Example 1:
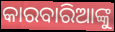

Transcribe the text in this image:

କାରବାରିଆଙ୍କୁ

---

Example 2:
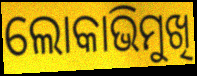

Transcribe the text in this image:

ଲୋକାଭିମୁଖି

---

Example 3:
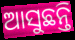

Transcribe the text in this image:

ଆସୁଛନ୍ତି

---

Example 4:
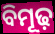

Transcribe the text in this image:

ବିମୂଢ଼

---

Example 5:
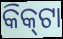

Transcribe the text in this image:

କିକ୍‍ଟା